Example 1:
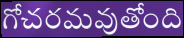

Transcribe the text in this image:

గోచరమవుతోంది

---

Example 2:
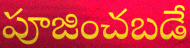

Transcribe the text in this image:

పూజించబడే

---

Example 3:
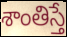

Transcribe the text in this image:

శాంతిస్తే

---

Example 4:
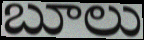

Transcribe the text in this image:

బూలు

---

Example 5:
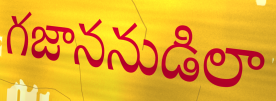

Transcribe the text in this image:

గజాననుడిలా